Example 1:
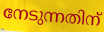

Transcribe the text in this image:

നേടുന്നതിന്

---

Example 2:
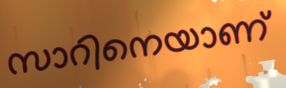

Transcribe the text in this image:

സാറിനെയാണ്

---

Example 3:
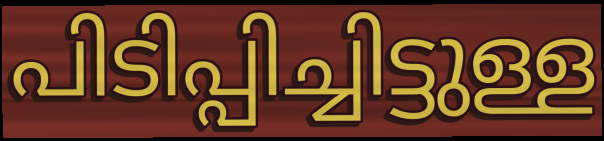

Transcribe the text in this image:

പിടിപ്പിച്ചിട്ടുള്ള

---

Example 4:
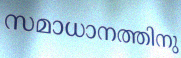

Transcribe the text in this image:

സമാധാനത്തിനു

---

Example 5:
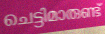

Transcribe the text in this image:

ചെട്ടിമാരുണ്ട്